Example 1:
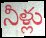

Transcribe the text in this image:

నీళ్లు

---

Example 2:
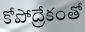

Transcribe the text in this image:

కోపోద్రేకంతో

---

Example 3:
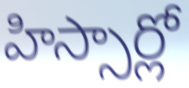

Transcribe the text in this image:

హిస్సార్లో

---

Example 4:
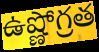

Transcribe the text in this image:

ఉష్ణోగ్రత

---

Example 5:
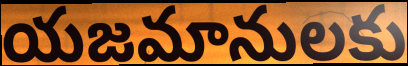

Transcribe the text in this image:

యజమానులకు